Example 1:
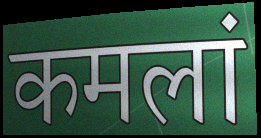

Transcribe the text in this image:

कमलां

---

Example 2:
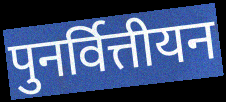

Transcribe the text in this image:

पुनर्वित्तीयन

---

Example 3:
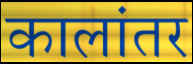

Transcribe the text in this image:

कालांतर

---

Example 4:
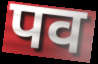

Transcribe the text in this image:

पव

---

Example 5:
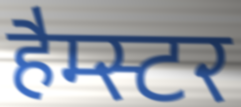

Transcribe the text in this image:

हैम्स्टर